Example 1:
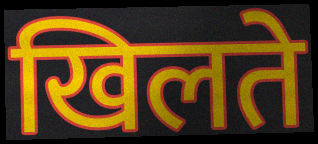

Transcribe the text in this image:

खिलते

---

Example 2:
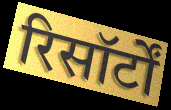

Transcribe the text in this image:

रिसॉर्टों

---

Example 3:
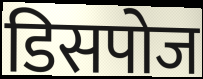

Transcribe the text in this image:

डिसपोज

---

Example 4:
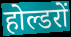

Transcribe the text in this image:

होल्डरों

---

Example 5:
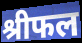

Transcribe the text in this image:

श्रीफल